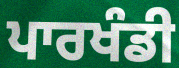
ਪਾਰਖੰਡੀ